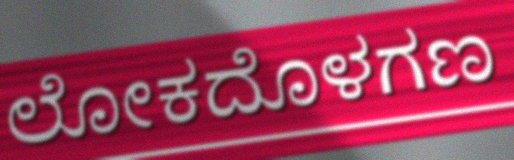
ಲೋಕದೊಳಗಣ